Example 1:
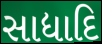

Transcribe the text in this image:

સાદ્યાદિ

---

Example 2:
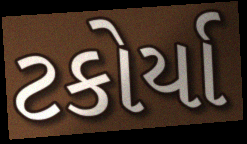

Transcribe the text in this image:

ટકોર્યા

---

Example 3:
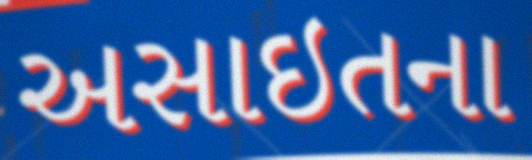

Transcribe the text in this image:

અસાઇતના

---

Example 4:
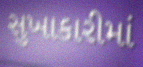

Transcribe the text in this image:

સુખાકારીમાં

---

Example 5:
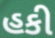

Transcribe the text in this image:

હકી